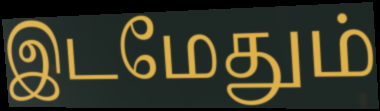
இடமேதும்